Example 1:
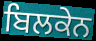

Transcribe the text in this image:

ਬਿਲਕੇਨ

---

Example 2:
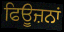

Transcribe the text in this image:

ਫਿਊਜ਼ਨਾਂ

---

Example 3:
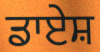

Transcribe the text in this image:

ਡਾਏਸ਼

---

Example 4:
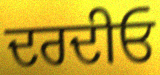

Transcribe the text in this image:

ਦਰਦੀਓ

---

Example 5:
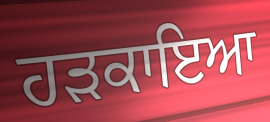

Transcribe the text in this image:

ਹੜਕਾਇਆ